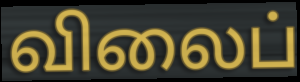
விலைப்